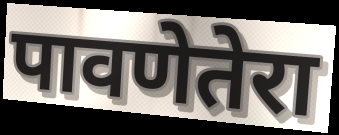
पावणेतेरा